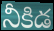
నీకిడ